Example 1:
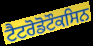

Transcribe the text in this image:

ਟੈਟਰੋਡੋਟੌਕਸਿਨ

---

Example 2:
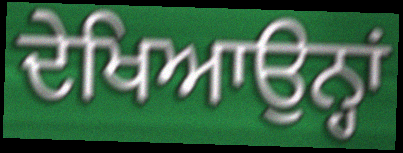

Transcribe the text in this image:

ਦੇਖਿਆਉਨ੍ਹਾਂ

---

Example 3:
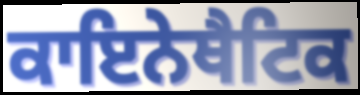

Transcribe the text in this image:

ਕਾਇਨੇਥੈਟਿਕ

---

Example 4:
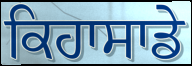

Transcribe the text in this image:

ਕਿਹਾਸਾਡੇ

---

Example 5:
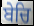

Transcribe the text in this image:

ਬੇਚਿ